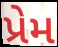
પ્રેમ